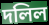
দলিল